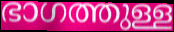
ഭാഗത്തുള്ള